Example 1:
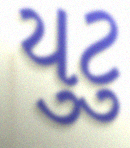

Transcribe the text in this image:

યુટુ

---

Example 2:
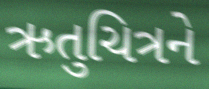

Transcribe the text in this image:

ઋતુચિત્રને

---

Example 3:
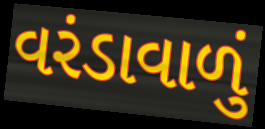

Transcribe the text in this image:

વરંડાવાળું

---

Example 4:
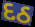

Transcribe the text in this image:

દઠ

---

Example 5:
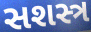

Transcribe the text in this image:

સશસ્ત્ર